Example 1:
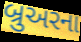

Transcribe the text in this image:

બ્રુઅરના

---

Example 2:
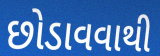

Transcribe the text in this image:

છોડાવવાથી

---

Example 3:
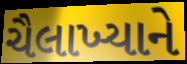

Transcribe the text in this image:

ચૈલાખ્યાને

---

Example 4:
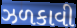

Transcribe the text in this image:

ઝળકાવી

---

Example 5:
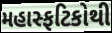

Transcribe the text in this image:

મહાસ્ફટિકોથી